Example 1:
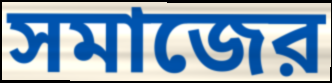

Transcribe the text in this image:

সমাজের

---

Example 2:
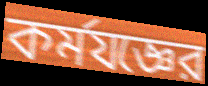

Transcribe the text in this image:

কর্মযজ্ঞের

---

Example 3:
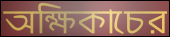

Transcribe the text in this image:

অক্ষিকাচের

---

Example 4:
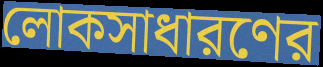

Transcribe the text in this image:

লোকসাধারণের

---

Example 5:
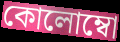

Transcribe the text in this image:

কোলোম্বো